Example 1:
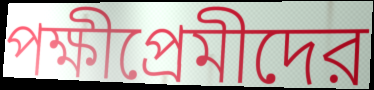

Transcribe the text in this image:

পক্ষীপ্রেমীদের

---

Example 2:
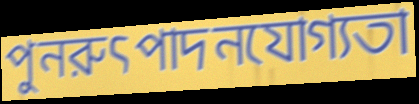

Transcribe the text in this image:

পুনরুৎপাদনযোগ্যতা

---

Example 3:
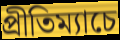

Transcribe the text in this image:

প্রীতিম্যাচে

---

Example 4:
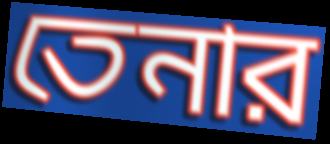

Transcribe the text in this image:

তেনার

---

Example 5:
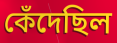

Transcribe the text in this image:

কেঁদেছিল